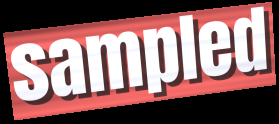
sampled